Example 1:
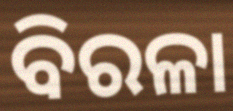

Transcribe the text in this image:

ବିରଳା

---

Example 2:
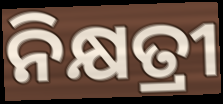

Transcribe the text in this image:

ନିକ୍ଷତ୍ରୀ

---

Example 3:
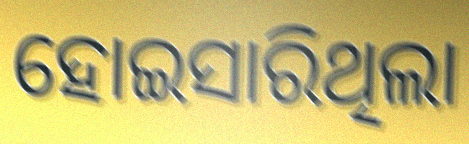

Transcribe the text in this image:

ହୋଇସାରିଥିଲା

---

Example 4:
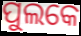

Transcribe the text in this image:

ପୁଲକେ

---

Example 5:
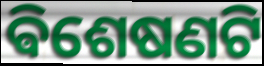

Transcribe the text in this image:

ଵିଶେଷଣଟି